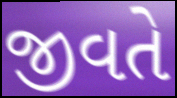
જીવતે